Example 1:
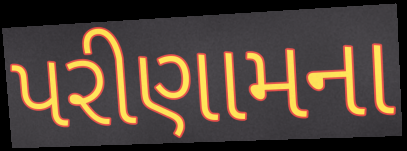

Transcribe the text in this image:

પરીણામના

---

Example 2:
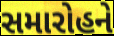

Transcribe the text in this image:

સમારોહને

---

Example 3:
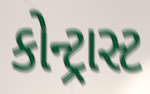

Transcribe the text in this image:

કોન્ટ્રાસ્ટ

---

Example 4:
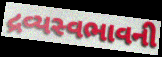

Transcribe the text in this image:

દ્રવ્યસ્વભાવની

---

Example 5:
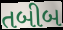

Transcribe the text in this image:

તબીબ